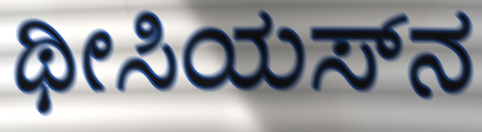
ಥೀಸಿಯಸ್‌ನ